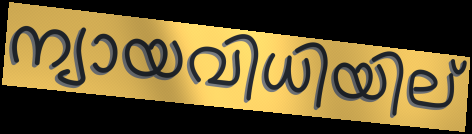
ന്യായവിധിയില്